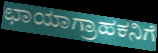
ಛಾಯಾಗ್ರಾಹಕನಿಗೆ